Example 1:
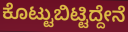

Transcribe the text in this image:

ಕೊಟ್ಟುಬಿಟ್ಟಿದ್ದೇನೆ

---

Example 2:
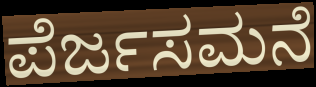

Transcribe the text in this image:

ಪೆರ್ಜಸಮನೆ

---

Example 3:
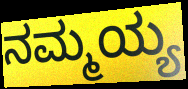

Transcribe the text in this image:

ನಮ್ಮಯ್ಯ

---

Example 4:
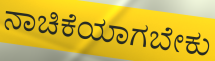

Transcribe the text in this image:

ನಾಚಿಕೆಯಾಗಬೇಕು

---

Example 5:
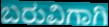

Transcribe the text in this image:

ಬರುವಿಗಾಗಿ